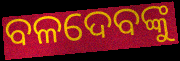
ବଳଦେବଙ୍କୁ